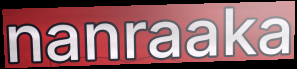
nanraaka